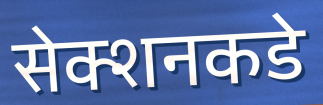
सेक्शनकडे